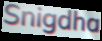
Snigdha